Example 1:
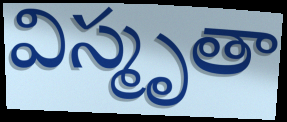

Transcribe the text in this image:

విస్మృతా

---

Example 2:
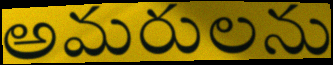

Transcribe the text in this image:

అమరులను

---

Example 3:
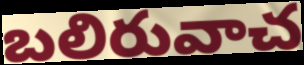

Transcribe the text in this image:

బలిరువాచ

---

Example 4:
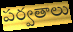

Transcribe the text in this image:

పర్వతాలు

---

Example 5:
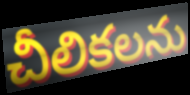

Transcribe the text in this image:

చీలికలను